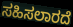
ಸಹಿಸಲಾರದೆ